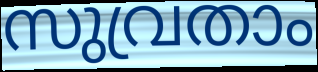
സുവ്രതാം